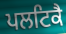
ਪਲਟਿਕੈ